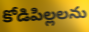
కోడిపిల్లలను